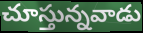
చూస్తున్నవాడు